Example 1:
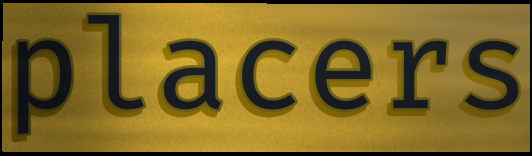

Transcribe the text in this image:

placers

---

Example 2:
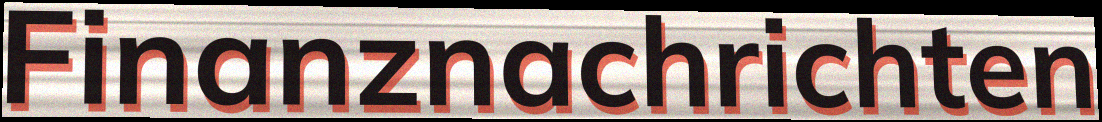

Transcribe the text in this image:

Finanznachrichten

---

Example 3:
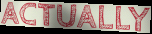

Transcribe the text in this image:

ACTUALLY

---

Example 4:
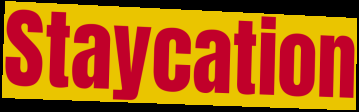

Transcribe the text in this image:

Staycation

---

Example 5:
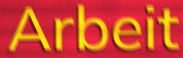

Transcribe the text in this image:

Arbeit